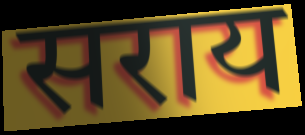
सराय